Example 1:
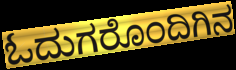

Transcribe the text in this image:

ಓದುಗರೊಂದಿಗಿನ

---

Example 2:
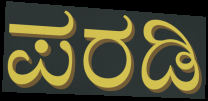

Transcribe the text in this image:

ಪರಡಿ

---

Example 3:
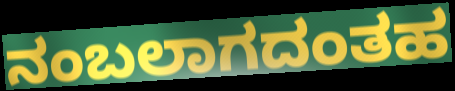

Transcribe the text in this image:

ನಂಬಲಾಗದಂತಹ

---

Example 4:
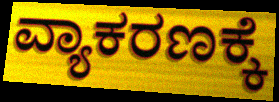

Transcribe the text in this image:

ವ್ಯಾಕರಣಕ್ಕೆ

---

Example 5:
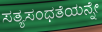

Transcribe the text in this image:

ಸತ್ಯಸಂಧತೆಯನ್ನೇ